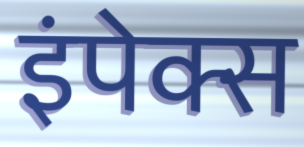
इंपेक्स